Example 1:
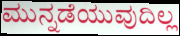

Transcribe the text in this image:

ಮುನ್ನಡೆಯುವುದಿಲ್ಲ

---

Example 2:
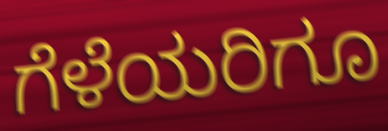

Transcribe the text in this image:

ಗೆಳೆಯರಿಗೂ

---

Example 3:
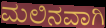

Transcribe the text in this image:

ಮಲಿನವಾಗಿ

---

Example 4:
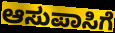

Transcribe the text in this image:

ಆಸುಪಾಸಿಗೆ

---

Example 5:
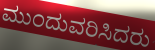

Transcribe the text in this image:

ಮುಂದುವರಿಸಿದರು